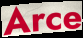
Arce